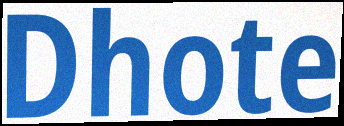
Dhote